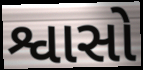
શ્વાસો